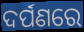
ଦର୍ପଣରେ